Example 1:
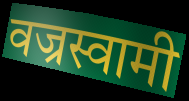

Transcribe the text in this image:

वज्रस्वामी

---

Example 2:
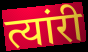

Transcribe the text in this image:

त्यांरी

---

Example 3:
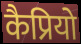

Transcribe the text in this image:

कैप्रियो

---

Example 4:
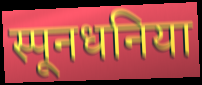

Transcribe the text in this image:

स्पूनधनिया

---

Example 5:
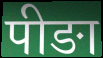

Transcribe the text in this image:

पीङा